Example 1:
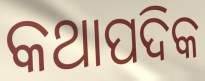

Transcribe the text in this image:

କଥାପଦିକ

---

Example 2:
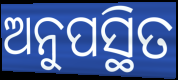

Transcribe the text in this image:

ଅନୁପସ୍ଥିତ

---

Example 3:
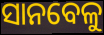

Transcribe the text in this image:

ସାନବେଳୁ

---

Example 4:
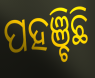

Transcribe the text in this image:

ପହଞ୍ଚିଛି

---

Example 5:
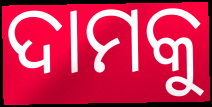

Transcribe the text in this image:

ଦାମକୁ